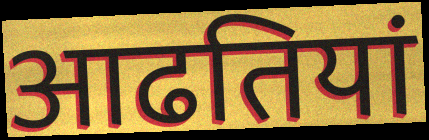
आढतियां